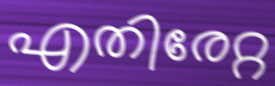
എതിരേറ്റ